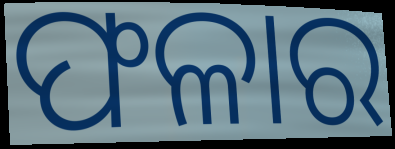
ଫଳାର